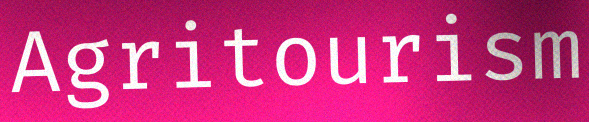
Agritourism